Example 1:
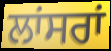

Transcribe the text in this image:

ਲਾਂਸਰਾਂ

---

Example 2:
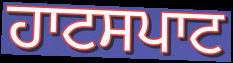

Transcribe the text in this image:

ਹਾਟਸਪਾਟ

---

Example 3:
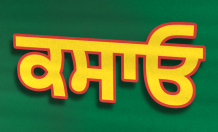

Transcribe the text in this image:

ਕਸਾਓ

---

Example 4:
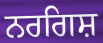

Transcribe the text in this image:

ਨਰਗਿਸ਼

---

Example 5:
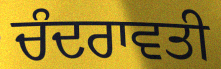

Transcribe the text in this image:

ਚੰਦਰਾਵਤੀ